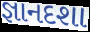
જ્ઞાનદશા